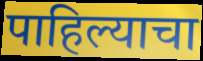
पाहिल्याचा